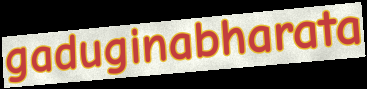
gaduginabharata